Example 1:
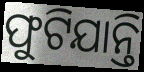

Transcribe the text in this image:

ଫୁଟିଯାନ୍ତି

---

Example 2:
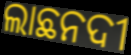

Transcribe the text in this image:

ଲାଛନଦୀ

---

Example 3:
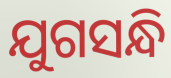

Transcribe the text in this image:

ଯୁଗସନ୍ଧି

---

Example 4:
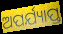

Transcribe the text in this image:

ଅପର୍ଯ୍ୟାପ୍ତ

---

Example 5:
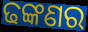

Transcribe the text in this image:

ଢଙ୍କଣର